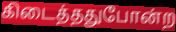
கிடைத்ததுபோன்ற